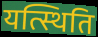
यत्स्थिति